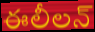
ఈలీలన్